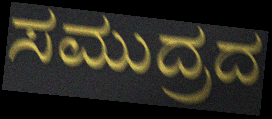
ಸಮುದ್ರದ